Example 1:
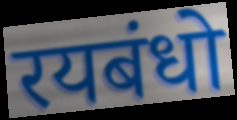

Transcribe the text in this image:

रयबंधो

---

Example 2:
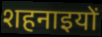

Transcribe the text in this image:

शहनाइयों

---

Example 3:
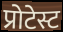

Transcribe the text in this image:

प्रोटेस्ट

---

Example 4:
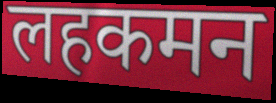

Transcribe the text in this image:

लहकमन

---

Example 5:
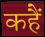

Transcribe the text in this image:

कहैं